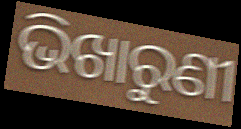
ଭିଖାରୁଣୀ